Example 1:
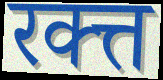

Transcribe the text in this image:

रक्त्त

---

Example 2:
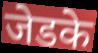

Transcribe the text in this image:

जेडके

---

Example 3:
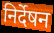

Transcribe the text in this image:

निर्देषन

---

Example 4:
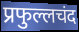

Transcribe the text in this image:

प्रफुल्लचंद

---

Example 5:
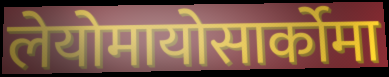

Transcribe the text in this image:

लेयोमायोसार्कोमा